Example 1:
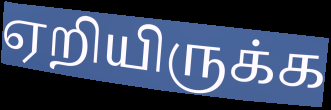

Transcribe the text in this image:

ஏறியிருக்க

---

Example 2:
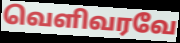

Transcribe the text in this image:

வெளிவரவே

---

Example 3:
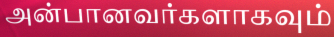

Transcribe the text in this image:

அன்பானவர்களாகவும்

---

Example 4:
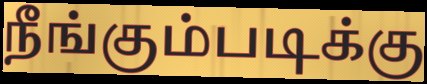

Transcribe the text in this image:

நீங்கும்படிக்கு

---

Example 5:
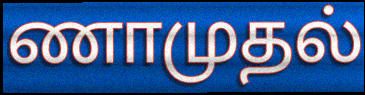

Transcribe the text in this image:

ணாமுதல்